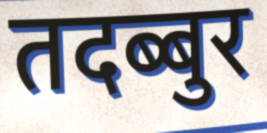
तदब्बुर